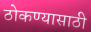
ठोकण्यासाठी